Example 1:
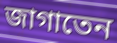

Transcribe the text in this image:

জাগাতেন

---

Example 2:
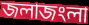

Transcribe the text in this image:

জলাজংলা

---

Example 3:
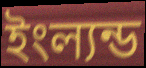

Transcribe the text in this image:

ইংল্যন্ড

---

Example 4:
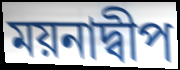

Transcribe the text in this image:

ময়নাদ্বীপ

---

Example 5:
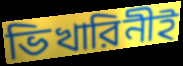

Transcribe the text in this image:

ভিখারিনীই